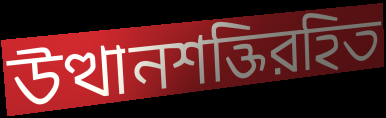
উত্থানশক্তিরহিত